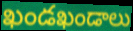
ఖండఖండాలు